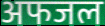
अफजल